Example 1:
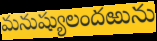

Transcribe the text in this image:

మనుష్యులందఱును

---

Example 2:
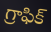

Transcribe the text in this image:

గ్రాఫిక్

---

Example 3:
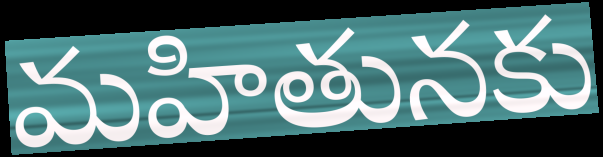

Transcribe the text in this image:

మహితునకు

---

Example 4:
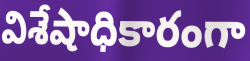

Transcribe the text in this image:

విశేషాధికారంగా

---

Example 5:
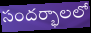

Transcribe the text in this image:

సందర్భాలలో